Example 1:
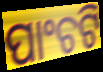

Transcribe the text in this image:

ପାଂଚଟି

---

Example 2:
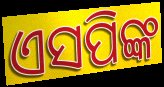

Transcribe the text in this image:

ଏସପିଙ୍କ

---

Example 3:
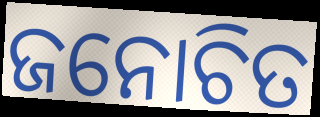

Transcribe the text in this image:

ଜନୋଚିତ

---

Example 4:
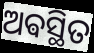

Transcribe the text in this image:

ଅଵସ୍ଥିତ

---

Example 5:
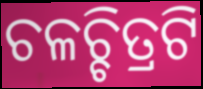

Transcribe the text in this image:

ଚଳଚ୍ଚିତ୍ରଟି